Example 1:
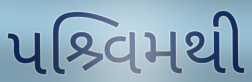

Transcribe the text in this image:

પશ્ર્વિમથી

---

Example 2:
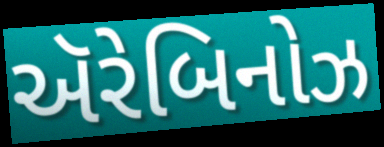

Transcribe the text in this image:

ઍરેબિનોઝ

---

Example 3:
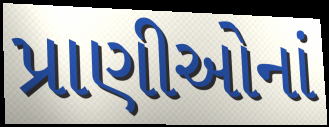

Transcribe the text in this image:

પ્રાણીઓનાં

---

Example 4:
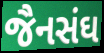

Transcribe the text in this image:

જૈનસંઘ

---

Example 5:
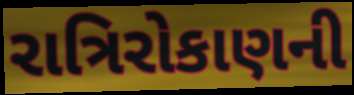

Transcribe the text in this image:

રાત્રિરોકાણની